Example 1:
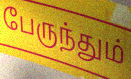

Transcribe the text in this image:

பேருந்தும்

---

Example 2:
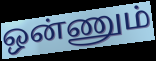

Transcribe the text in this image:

ஒன்ணும்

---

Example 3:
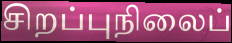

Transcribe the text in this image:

சிறப்புநிலைப்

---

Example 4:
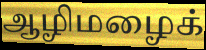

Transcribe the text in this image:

ஆழிமழைக்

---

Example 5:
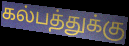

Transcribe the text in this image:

கல்பத்துக்கு